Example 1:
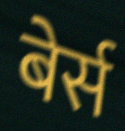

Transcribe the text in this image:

बेर्स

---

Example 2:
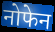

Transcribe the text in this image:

नोफेन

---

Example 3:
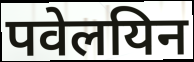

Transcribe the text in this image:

पवेलयिन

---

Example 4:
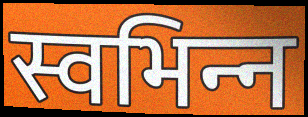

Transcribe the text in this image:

स्वभिन्न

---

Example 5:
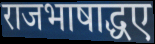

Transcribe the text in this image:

राजभाषाद्धए